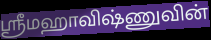
ஸ்ரீமஹாவிஷ்ணுவின்